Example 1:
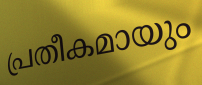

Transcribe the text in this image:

പ്രതീകമായും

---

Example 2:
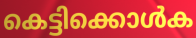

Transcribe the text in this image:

കെട്ടിക്കൊൾക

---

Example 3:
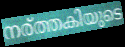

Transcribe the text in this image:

നര്ത്തകിയുടെ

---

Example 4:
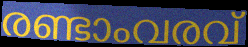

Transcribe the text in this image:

രണ്ടാംവരവ്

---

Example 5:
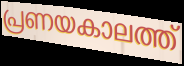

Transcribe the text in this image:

പ്രണയകാലത്ത്